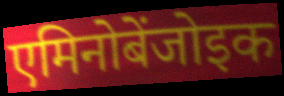
एमिनोबेंजोइक